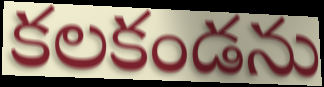
కలకండను